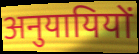
अनुयायियों